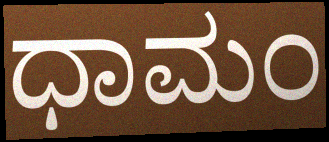
ಧಾಮಂ